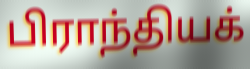
பிராந்தியக்